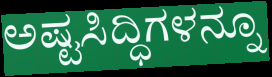
ಅಷ್ಟಸಿದ್ಧಿಗಳನ್ನೂ